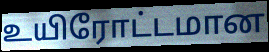
உயிரோட்டமான